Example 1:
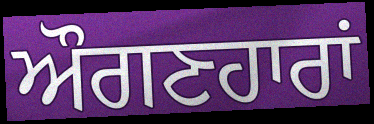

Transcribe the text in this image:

ਔਗਣਹਾਰਾਂ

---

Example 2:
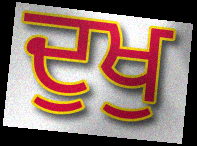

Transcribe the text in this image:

ਦੁਖੁ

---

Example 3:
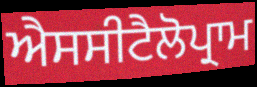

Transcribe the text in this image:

ਐਸਸੀਟੈਲੋਪ੍ਰਾਮ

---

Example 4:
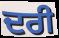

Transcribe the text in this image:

ਦਰੀ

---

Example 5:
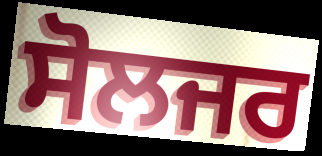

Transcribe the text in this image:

ਸੋਲਜਰ